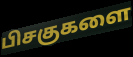
பிசகுகளை